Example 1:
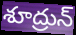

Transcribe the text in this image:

శూద్రున్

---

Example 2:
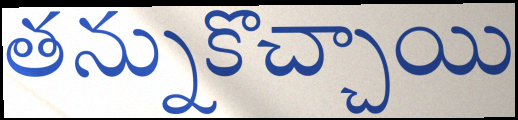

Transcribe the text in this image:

తన్నుకొచ్చాయి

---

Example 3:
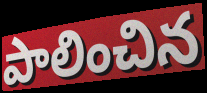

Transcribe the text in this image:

పాలించిన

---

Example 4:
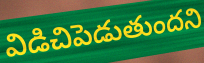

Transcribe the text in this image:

విడిచిపెడుతుందని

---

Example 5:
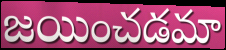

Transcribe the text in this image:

జయించడమా